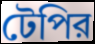
টেপির